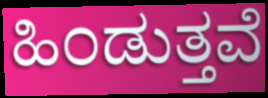
ಹಿಂಡುತ್ತವೆ